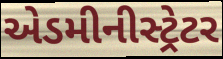
એડમીનીસ્ટ્રેટર